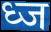
ध्ज